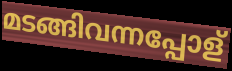
മടങ്ങിവന്നപ്പോള്